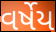
વર્ષેય